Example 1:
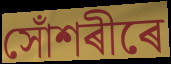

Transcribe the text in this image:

সোঁশৰীৰে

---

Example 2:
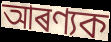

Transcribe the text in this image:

আৰণ্যক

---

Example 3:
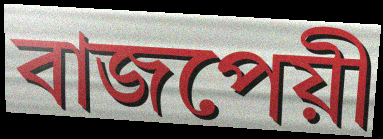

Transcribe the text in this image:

বাজপেয়ী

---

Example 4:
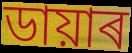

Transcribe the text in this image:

ডায়াৰ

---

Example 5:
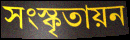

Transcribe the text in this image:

সংস্কৃতায়ন